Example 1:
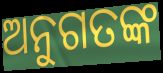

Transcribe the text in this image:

ଅନୁଗତଙ୍କ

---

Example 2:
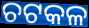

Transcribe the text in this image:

ଚଟକଳ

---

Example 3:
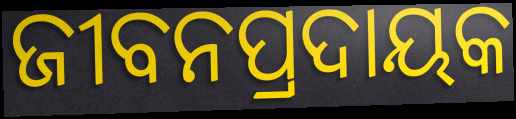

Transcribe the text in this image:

ଜୀବନପ୍ରଦାୟକ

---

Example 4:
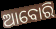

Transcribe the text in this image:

ଆବୋରି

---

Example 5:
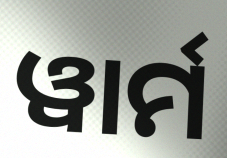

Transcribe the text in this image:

ୱାର୍ମ